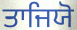
ਤਾਜਿਯੋ